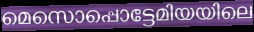
മെസൊപ്പൊട്ടേമിയയിലെ